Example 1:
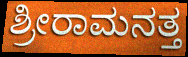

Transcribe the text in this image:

ಶ್ರೀರಾಮನತ್ತ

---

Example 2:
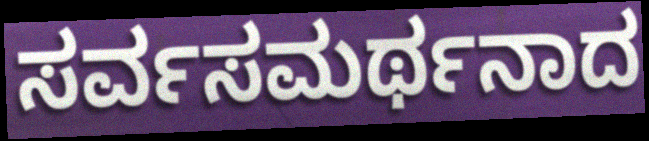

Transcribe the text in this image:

ಸರ್ವಸಮರ್ಥನಾದ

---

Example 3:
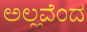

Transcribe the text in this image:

ಅಲ್ಲವೆಂದ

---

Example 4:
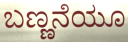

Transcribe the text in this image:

ಬಣ್ಣನೆಯೂ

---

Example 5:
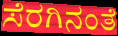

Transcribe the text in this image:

ಸೆರಗಿನಂತೆ